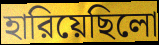
হারিয়েছিলো